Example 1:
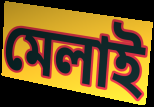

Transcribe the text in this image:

মেলাই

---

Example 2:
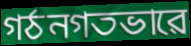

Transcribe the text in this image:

গঠনগতভাৱে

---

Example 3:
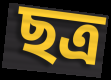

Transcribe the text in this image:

ছত্ৰ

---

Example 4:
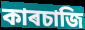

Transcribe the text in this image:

কাৰচাজি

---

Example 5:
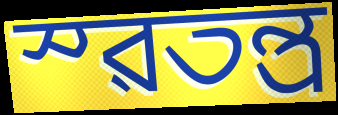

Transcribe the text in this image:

স্ৱতন্ত্ৰ